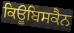
ਕਿਊਬਿਸਕੈਨ